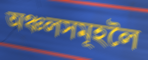
অঞ্চলসমূহলৈ